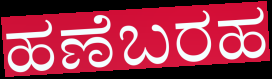
ಹಣೆಬರಹ